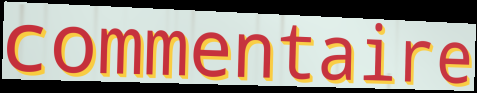
commentaire